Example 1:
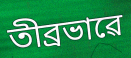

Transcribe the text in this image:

তীব্ৰভাৱে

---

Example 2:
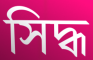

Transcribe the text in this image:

সিদ্ধ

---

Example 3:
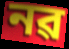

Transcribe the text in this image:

নৱ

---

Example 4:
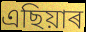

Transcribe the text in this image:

এছিয়াৰ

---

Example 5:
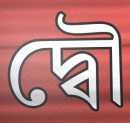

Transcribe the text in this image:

দ্বৌ